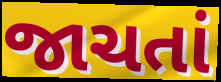
જાચતાં